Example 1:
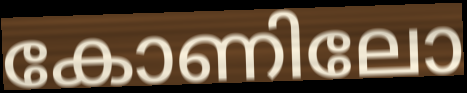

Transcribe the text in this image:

കോണിലോ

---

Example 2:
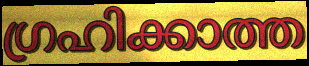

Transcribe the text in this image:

ഗ്രഹിക്കാത്ത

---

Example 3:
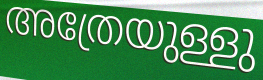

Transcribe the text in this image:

അത്രേയുള്ളു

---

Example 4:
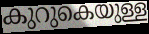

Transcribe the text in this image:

കുറുകെയുള്ള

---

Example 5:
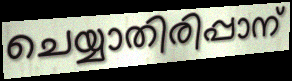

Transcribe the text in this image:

ചെയ്യാതിരിപ്പാന്